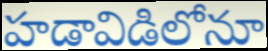
హడావిడిలోనూ